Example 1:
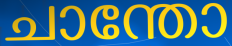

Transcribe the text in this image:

ചാന്തോ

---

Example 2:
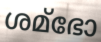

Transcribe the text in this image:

ശമ്ഭോ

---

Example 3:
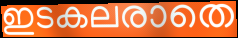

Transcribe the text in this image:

ഇടകലരാതെ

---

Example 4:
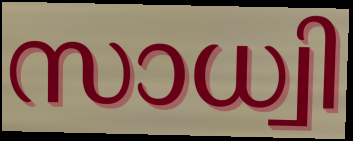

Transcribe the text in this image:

സാധ്വി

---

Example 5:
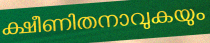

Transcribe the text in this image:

ക്ഷീണിതനാവുകയും